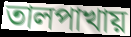
তালপাখায়